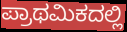
ಪ್ರಾಥಮಿಕದಲ್ಲಿ